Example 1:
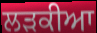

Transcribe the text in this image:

ਲੜਕੀਆ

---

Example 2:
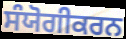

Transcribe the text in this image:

ਸੰਯੋਗੀਕਰਨ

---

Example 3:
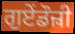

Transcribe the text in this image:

ਗੁਏਂਡੌਜ਼ੀ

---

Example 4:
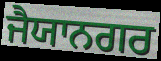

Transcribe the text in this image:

ਜੈਯਾਨਗਰ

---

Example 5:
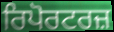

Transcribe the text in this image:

ਰਿਪੋਰਟਰਜ਼